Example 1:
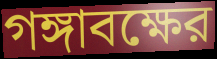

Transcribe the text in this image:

গঙ্গাবক্ষের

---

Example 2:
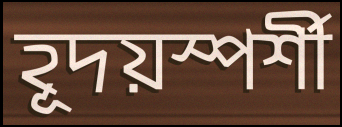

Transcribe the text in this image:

হূদয়স্পর্শী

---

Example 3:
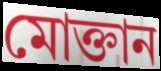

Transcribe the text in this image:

মোক্তান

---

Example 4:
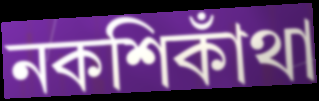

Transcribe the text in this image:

নকশিকাঁথা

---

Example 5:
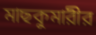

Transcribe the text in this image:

মাছকুমারীর